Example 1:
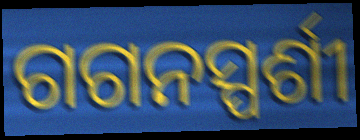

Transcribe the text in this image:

ଗଗନସ୍ପର୍ଶୀ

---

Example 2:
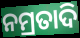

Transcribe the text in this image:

ନମ୍ରତାଦି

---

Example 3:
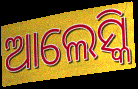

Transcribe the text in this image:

ଆଲେସ୍କି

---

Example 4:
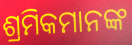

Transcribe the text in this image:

ଶ୍ରମିକମାନଙ୍କ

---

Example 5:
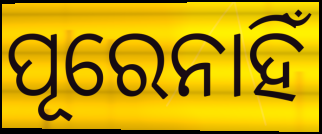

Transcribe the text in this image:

ପୂରେନାହିଁ